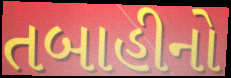
તબાહીનો